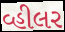
વ્હીલર